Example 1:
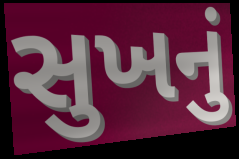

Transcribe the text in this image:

સુખનું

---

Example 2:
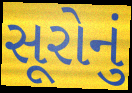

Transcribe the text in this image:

સૂરોનું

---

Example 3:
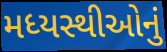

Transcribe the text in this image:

મધ્યસ્થીઓનું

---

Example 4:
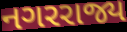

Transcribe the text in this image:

નગરરાજ્ય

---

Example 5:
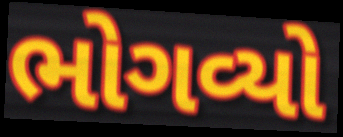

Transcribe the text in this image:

ભોગવ્યો